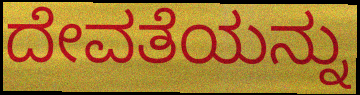
ದೇವತೆಯನ್ನು